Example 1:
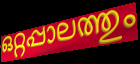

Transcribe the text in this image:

ഒറ്റപ്പാലത്തും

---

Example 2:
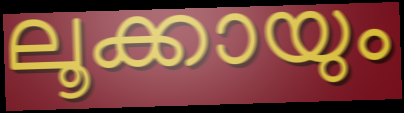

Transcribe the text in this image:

ലൂക്കായും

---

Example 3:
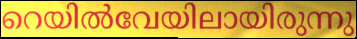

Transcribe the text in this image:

റെയിൽവേയിലായിരുന്നു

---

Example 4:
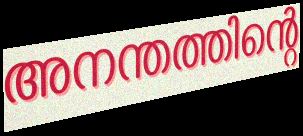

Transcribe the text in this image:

അനന്തത്തിന്റെ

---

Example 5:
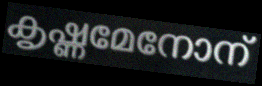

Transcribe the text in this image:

കൃഷ്ണമേനോന്